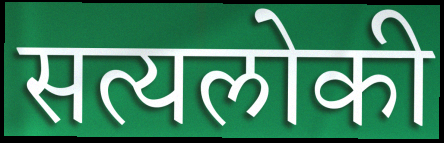
सत्यलोकी